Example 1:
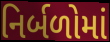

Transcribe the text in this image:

નિર્બળોમાં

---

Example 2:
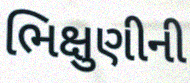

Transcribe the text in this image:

ભિક્ષુણીની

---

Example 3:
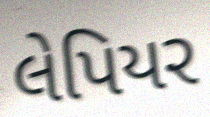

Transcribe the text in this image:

લેપિયર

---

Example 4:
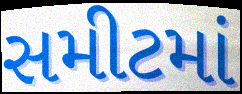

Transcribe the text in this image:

સમીટમાં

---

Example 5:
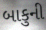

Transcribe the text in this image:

બાકુની